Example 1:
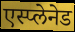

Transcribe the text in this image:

एस्प्लेनेड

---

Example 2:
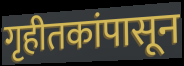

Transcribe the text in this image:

गृहीतकांपासून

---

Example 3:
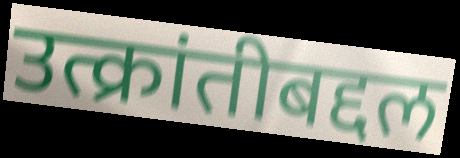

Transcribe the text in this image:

उत्क्रांतीबद्दल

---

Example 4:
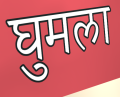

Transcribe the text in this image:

घुमला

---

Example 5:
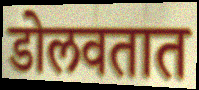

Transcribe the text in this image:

डोलवतात